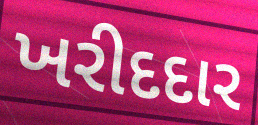
ખરીદદાર